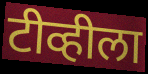
टीव्हीला